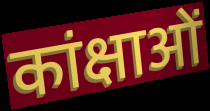
कांक्षाओं